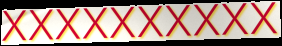
XXXXXXXXXX